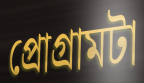
প্রোগ্রামটা